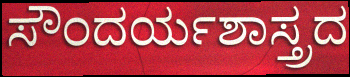
ಸೌಂದರ್ಯಶಾಸ್ತ್ರದ